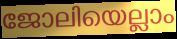
ജോലിയെല്ലാം